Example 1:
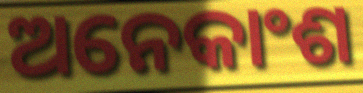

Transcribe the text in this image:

ଅନେକାଂଶ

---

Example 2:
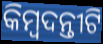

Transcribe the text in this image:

କିମ୍ୱଦନ୍ତୀଟି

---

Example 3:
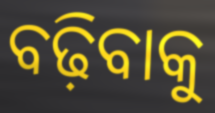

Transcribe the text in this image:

ବଢ଼ିବାକୁ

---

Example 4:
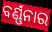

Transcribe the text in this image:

ବର୍ଣ୍ଣନାର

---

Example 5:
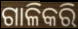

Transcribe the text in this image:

ଗାଳିକରି